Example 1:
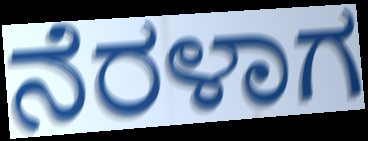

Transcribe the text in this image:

ನೆರಳಾಗ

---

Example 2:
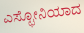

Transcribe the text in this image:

ಎಸ್ಟೋನಿಯಾದ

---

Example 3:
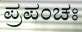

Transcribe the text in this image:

ಪ್ರಪಂಚಃ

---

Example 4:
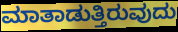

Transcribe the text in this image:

ಮಾತಾಡುತ್ತಿರುವುದು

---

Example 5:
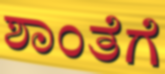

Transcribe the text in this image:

ಶಾಂತೆಗೆ